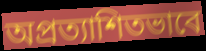
অপ্রত্যাশিতভাবে